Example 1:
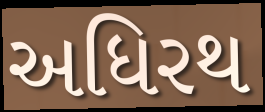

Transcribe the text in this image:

અધિરથ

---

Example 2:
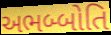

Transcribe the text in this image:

અભબ્બોતિ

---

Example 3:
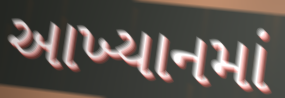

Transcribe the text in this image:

આખ્યાનમાં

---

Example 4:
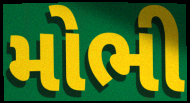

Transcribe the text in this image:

મોભી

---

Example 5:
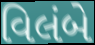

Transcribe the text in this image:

વિલંબે